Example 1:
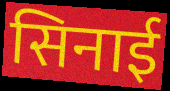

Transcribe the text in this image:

सिनाई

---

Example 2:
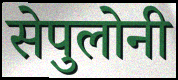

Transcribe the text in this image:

सेपुलोनी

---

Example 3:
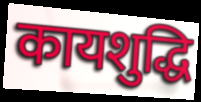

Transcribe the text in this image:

कायशुद्धि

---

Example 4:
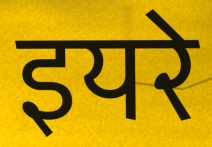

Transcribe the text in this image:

इयरे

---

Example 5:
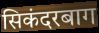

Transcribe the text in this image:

सिकंदरबाग